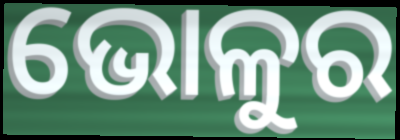
ଭୋଳୁର